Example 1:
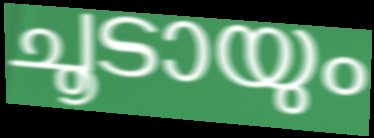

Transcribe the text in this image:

ചൂടായും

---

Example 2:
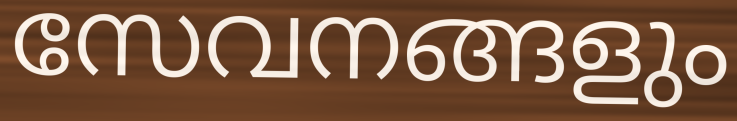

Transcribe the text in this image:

സേവനങ്ങളും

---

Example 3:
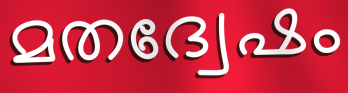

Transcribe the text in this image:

മതദ്വേഷം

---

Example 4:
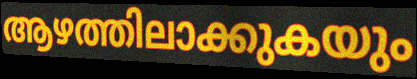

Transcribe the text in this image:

ആഴത്തിലാക്കുകയും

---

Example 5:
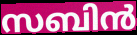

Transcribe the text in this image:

സബിൻ